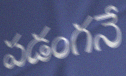
పడంగనే